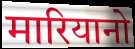
मारियानो